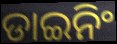
ଡାଇନିଂ